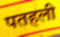
पतहली